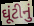
ઘૂંટીનું